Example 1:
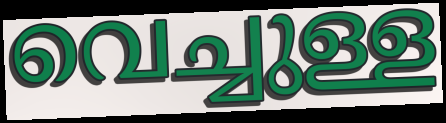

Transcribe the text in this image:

വെച്ചുള്ള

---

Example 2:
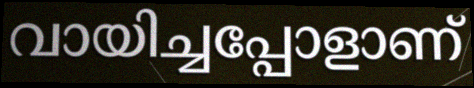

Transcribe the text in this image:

വായിച്ചപ്പോളാണ്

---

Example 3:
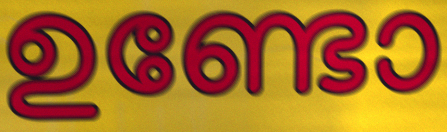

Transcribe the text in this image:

ഉണ്ടോ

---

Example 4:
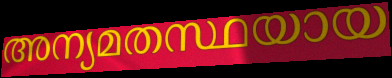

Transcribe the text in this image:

അന്യമതസ്ഥയായ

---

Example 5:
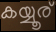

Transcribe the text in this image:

കയ്യൂര്